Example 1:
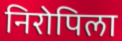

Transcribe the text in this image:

निरोपिला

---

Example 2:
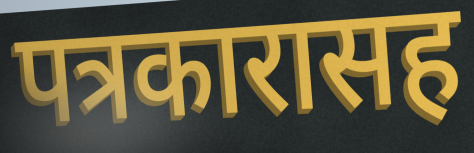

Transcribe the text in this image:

पत्रकारासह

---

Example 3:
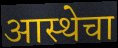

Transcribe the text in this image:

आस्थेचा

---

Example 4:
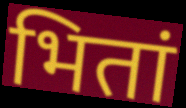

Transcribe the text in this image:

भितां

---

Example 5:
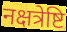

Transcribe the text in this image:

नक्षत्रेष्टि